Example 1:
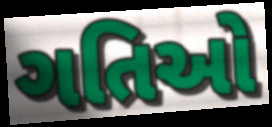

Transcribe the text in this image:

ગતિઓ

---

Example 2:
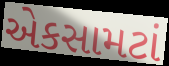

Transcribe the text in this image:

એકસામટાં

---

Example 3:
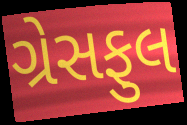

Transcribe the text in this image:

ગ્રેસફુલ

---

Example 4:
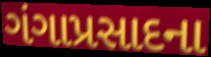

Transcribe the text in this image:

ગંગાપ્રસાદના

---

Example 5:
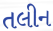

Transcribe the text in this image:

તલીન